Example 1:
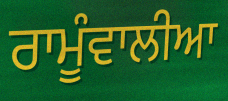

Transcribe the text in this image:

ਰਾਮੂੰਵਾਲੀਆ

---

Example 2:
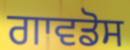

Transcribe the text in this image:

ਗਾਵਡੋਸ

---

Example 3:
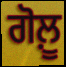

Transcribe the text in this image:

ਗੋਲ਼ੂ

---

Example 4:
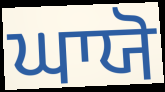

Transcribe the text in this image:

ਘਾਯੋ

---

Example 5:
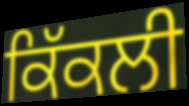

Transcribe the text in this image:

ਕਿੱਕਲੀ